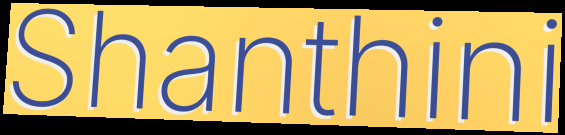
Shanthini